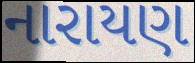
નારાયણ